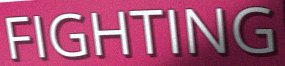
FIGHTING